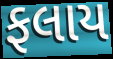
ફલાય